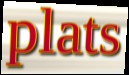
plats